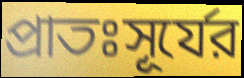
প্রাতঃসূর্যের